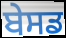
ਬੇਸਡ